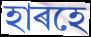
হাৰহে